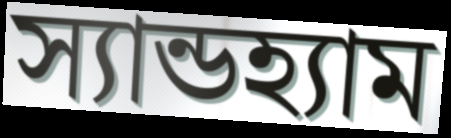
স্যান্ডহ্যাম